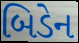
બિડેન